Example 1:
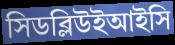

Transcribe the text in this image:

সিডব্লিউইআইসি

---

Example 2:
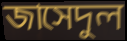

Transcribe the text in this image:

জাসেদুল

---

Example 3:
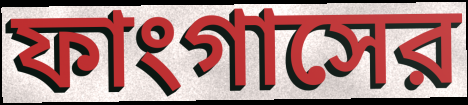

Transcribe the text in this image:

ফাংগাসের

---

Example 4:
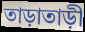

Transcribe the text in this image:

তাড়াতাড়ী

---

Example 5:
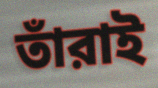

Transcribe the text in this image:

তাঁরাই